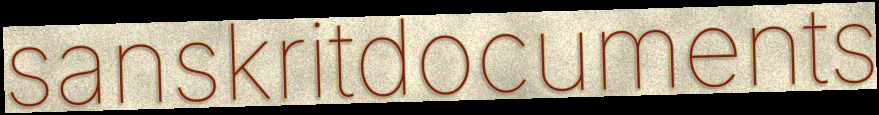
sanskritdocuments